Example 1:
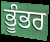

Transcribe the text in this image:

ਭੂੰਭਰ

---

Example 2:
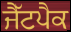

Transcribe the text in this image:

ਜੈੱਟਪੈਕ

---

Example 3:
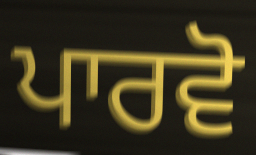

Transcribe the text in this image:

ਪਾਰਵੋ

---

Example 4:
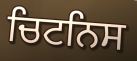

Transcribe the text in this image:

ਚਿਟਨਿਸ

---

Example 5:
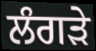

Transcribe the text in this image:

ਲੰਗੜੇ